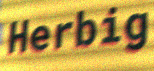
Herbig